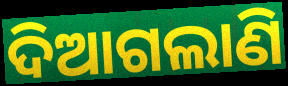
ଦିଆଗଲାଣି